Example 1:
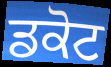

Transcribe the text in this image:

ਡਕੋਟ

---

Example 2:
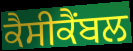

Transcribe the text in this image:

ਕੈਸੀਕੈਂਬਲ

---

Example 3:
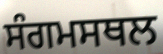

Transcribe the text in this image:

ਸੰਗਮਸਥਲ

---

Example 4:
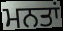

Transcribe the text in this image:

ਮਨਤਾਂ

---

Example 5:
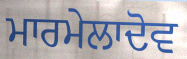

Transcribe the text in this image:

ਮਾਰਮੇਲਾਦੋਵ